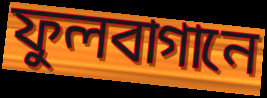
ফুলবাগানে